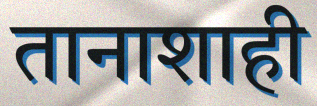
तानाशाही